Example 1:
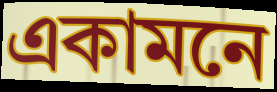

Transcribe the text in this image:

একামনে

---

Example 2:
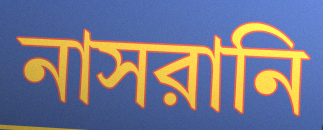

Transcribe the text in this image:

নাসরানি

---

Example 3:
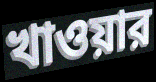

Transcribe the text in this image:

খাওয়ার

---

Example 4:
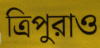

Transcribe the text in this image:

ত্রিপুরাও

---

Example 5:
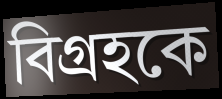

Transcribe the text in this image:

বিগ্রহকে